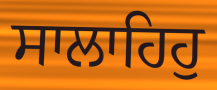
ਸਾਲਾਹਿਹੁ